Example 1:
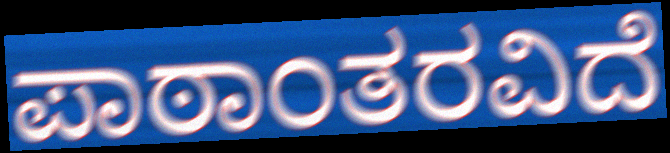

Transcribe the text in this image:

ಪಾಠಾಂತರವಿದೆ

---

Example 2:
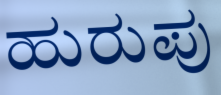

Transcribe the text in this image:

ಹುರುಪು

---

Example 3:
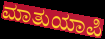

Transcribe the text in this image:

ಮಾತುಯಾಪಿ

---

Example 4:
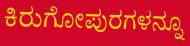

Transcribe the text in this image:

ಕಿರುಗೋಪುರಗಳನ್ನೂ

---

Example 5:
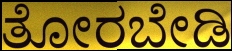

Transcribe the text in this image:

ತೋರಬೇಡಿ